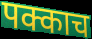
पक्काच